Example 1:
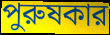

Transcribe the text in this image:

পুরুষকার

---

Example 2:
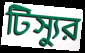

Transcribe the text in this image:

টিস্যুর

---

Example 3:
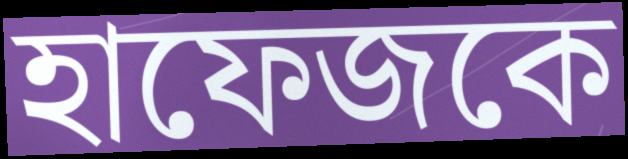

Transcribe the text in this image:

হাফেজকে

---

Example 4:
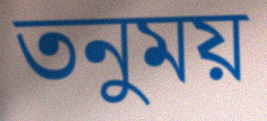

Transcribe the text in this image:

তনুময়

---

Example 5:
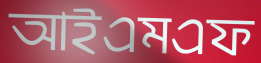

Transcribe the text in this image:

আইএমএফ